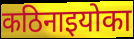
कठिनाइयोका